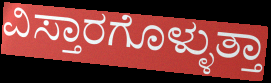
ವಿಸ್ತಾರಗೊಳ್ಳುತ್ತಾ